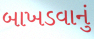
બાખડવાનું